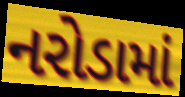
નરોડામાં